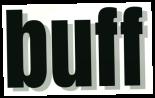
buff